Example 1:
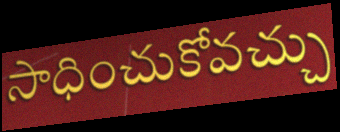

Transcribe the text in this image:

సాధించుకోవచ్చు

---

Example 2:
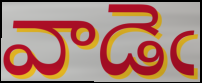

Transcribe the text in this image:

వాడెఁ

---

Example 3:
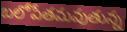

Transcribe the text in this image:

బలోపేతమవుతున్న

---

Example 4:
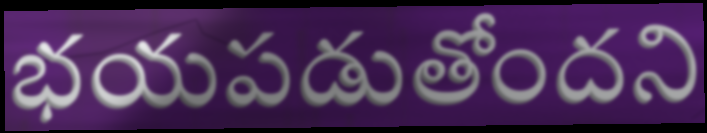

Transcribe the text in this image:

భయపడుతోందని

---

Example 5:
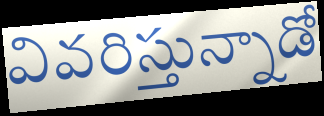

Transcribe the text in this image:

వివరిస్తున్నాడో